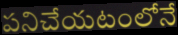
పనిచేయటంలోనే